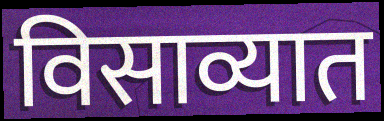
विसाव्यात